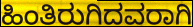
ಹಿಂತಿರುಗಿದವರಾಗಿ